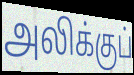
அலிக்குப்